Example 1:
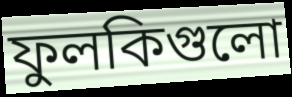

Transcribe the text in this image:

ফুলকিগুলো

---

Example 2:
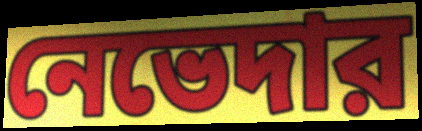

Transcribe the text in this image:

নেভেদার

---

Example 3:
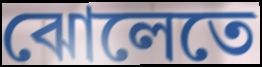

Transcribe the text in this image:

ঝোলেতে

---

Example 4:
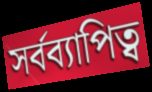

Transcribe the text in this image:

সর্বব্যাপিত্ব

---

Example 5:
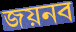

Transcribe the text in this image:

জয়নব